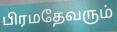
பிரமதேவரும்